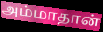
அம்மாதான்